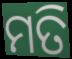
ମତି